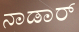
ನಾಡಾರ್